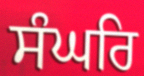
ਸੰਘਰਿ